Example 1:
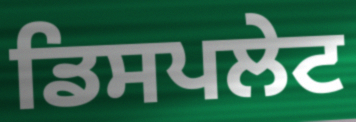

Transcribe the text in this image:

ਡਿਸਪਲੇਟ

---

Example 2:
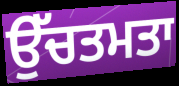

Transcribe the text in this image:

ਉੱਚਤਮਤਾ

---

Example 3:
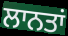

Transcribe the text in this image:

ਲਾਨਤਾਂ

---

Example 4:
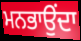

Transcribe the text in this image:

ਮਨਭਾਉਂਦਾ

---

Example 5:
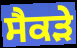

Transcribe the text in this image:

ਸੈਕੜੇ